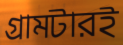
গ্রামটারই